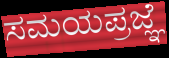
ಸಮಯಪ್ರಜ್ಞೆ